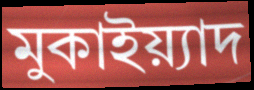
মুকাইয়্যাদ